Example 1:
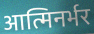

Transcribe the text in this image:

आत्मिनर्भर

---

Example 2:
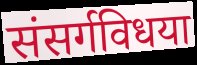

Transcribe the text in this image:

संसर्गविधया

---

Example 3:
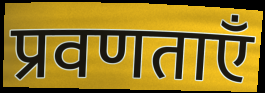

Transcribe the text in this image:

प्रवणताएँ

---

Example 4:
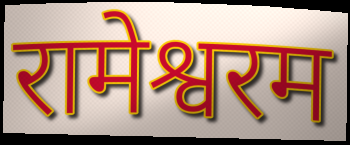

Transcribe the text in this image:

रामेश्वरम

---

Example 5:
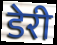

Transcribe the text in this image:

डेरी